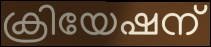
ക്രിയേഷന്